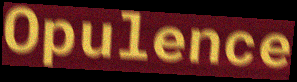
Opulence